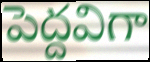
పెద్దవిగా